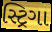
સ્ટ્રિગા